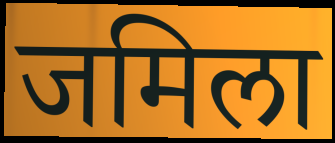
जमिला